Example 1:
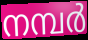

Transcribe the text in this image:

നമ്പർ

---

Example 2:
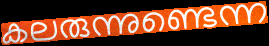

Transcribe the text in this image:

കലരുന്നുണ്ടെന്ന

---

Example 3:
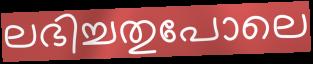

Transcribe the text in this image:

ലഭിച്ചതുപോലെ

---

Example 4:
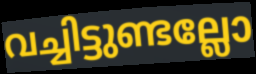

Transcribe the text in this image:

വച്ചിട്ടുണ്ടല്ലോ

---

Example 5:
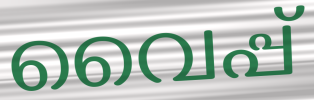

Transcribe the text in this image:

വൈപ്പ്